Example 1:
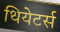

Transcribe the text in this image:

थियेटर्स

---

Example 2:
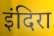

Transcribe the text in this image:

इंदिरा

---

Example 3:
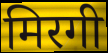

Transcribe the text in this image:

मिरगी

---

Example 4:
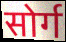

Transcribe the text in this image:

सोर्ग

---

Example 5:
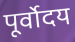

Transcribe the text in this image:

पूर्वोदय